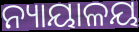
ନ୍ୟାୟାଳୟ